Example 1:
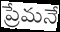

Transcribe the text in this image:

ప్రేమనే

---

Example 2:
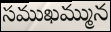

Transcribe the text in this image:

సముఖమ్మున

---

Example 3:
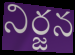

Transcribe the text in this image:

నిర్జన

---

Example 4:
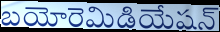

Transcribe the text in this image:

బయోరెమిడియేషన్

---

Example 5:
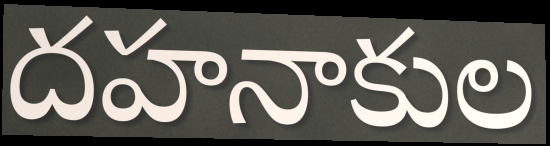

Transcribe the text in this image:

దహనాకుల